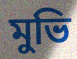
মুভি